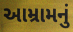
આમ્રામનું